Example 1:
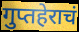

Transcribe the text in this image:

गुप्तहेराचं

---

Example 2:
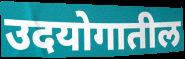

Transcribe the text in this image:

उदयोगातील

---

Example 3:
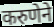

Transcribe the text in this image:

करुणेने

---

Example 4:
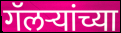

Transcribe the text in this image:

गॅलर्‍यांच्या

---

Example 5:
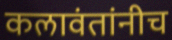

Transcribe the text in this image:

कलावंतांनीच